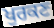
ਖੁਰਕਣ